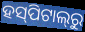
ହସ୍‌ପିଟାଲ୍‌ରୁ